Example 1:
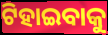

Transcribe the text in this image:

ଟିହାଇବାକୁ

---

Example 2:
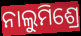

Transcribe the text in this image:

ନାଲୁମିଶ୍ରେ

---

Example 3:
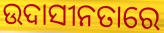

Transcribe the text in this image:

ଉଦାସୀନତାରେ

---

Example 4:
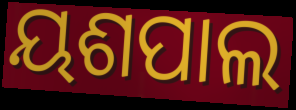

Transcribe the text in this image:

ୟଶପାଲ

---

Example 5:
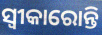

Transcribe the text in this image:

ସ୍ଵୀକାରୋନ୍ତି